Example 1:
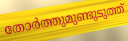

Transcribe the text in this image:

തോർത്തുമുണ്ടുടുത്ത്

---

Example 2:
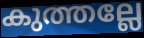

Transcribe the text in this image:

കുത്തല്ലേ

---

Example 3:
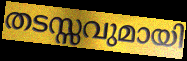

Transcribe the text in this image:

തടസ്സവുമായി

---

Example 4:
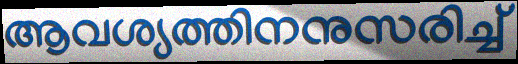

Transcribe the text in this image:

ആവശ്യത്തിനനുസരിച്ച്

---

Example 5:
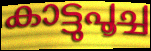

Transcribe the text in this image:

കാട്ടുപൂച്ച